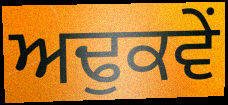
ਅਢੁਕਵੇਂ